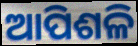
ଆପିଶଳି